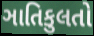
ઞાતિકુલતો